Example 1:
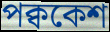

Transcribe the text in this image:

পক্বকেশ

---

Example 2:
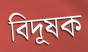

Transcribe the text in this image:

বিদূষক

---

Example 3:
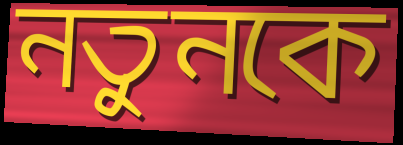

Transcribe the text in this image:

নতুনকে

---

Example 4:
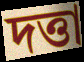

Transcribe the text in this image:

দত্তা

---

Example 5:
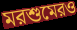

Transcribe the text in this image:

মরশুমেরও